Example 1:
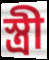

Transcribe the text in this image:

স্ত্রী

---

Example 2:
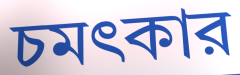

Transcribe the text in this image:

চমৎকার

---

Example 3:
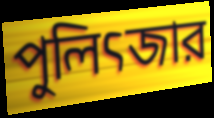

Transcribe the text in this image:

পুলিৎজার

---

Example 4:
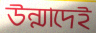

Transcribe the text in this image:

উন্মাদেই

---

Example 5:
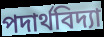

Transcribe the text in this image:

পদার্থবিদ্যা